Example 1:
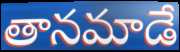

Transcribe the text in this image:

తానమాడే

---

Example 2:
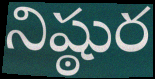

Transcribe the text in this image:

నిష్ఠుర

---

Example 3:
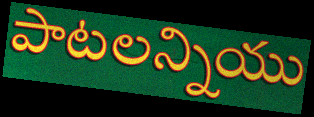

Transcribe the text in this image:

పాటలన్నియు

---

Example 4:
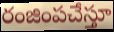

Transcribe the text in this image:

రంజింపచేస్తూ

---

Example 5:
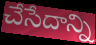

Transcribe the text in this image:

చేసేదాన్ని